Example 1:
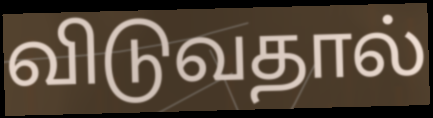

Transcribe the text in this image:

விடுவதால்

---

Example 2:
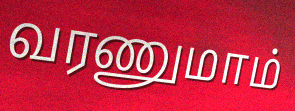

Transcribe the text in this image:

வரணுமாம்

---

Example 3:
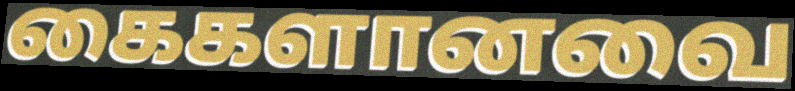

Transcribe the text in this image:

கைகளானவை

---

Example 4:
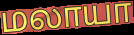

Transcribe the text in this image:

மலாயா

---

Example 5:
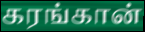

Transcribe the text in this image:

கரங்கான்